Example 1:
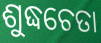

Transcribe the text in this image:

ଶୁଦ୍ଧଚେତା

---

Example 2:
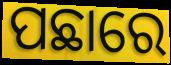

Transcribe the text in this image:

ପଛାରେ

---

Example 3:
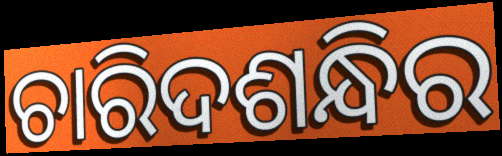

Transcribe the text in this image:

ଚାରିଦଶନ୍ଧିର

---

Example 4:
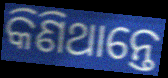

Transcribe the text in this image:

କିଣିଥାନ୍ତେ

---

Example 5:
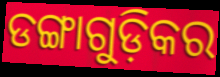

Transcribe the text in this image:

ଡଙ୍ଗାଗୁଡ଼ିକର